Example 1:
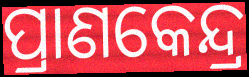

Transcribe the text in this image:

ପ୍ରାଣକେନ୍ଦ୍ର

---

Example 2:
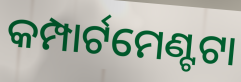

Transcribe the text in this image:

କମ୍ପାର୍ଟମେଣ୍ଟଟା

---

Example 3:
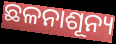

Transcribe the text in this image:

ଛଳନାଶୂନ୍ୟ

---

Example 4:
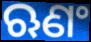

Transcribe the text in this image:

ଋଣଂ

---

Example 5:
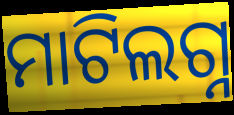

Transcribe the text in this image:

ମାଟିଲଗ୍ନ